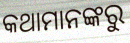
କଥାମାନଙ୍କରୁ